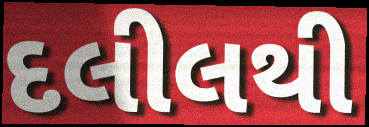
દલીલથી